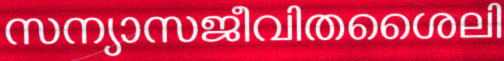
സന്യാസജീവിതശൈലി